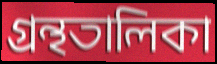
গ্ৰন্থতালিকা